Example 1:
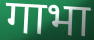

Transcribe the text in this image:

गाभा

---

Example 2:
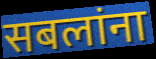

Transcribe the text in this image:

सबलांना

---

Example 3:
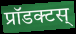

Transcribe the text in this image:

प्रॉडक्टस्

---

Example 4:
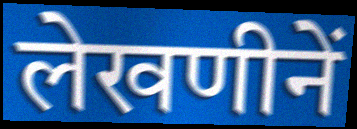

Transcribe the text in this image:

लेखणीनें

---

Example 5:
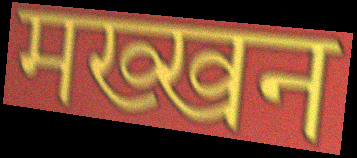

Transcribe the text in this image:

मख्खन